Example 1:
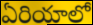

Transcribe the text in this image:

ఏరియాలో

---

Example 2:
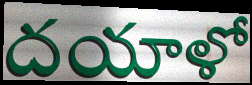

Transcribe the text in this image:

దయాళో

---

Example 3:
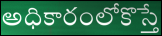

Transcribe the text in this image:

అధికారంలోకొస్తే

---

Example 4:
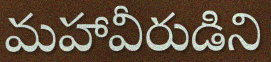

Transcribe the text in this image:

మహావీరుడిని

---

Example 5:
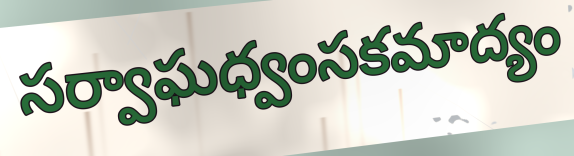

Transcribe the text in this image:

సర్వాఘధ్వంసకమాద్యం